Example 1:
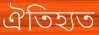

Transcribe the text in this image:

ঐতিহ্যত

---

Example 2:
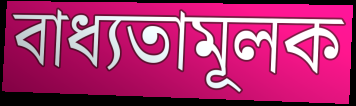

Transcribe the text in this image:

বাধ্যতামূলক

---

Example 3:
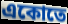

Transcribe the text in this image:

একোতে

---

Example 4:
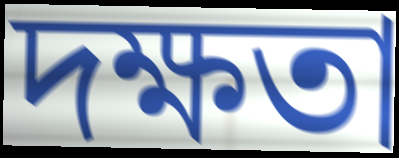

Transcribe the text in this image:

দক্ষতা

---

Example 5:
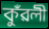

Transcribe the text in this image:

কুঁৱলী